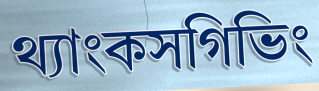
থ্যাংকসগিভিং